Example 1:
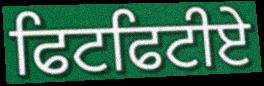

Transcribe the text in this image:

ਫਿਟਫਿਟੀਏ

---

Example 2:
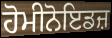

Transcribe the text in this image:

ਹੋਮੀਨੋਇਡਜ਼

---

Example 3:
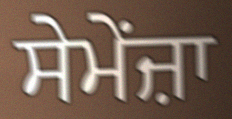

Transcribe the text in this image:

ਸੇਮੇਂਜ਼ਾ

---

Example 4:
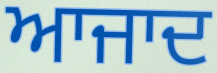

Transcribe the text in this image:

ਆਜਾਦ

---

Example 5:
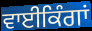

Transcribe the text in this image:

ਵਾਈਕਿੰਗਾਂ